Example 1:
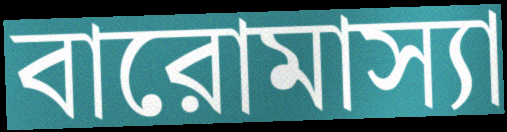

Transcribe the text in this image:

বারোমাস্যা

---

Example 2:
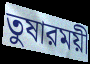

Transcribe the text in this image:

তুষারময়ী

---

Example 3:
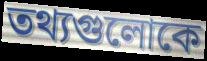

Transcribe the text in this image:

তথ্যগুলোকে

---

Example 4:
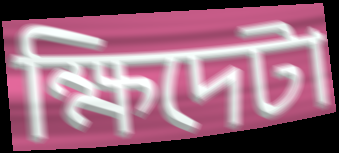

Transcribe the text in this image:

ক্ষিদেটা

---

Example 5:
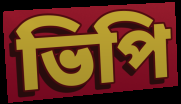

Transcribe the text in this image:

ভিপি